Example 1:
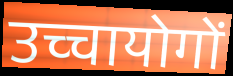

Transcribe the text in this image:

उच्‍चायोगों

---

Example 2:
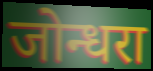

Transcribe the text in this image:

जोन्धरा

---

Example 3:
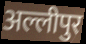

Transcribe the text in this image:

अल्लीपुर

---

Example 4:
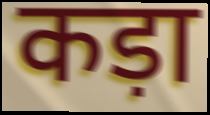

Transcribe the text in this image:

कड़ा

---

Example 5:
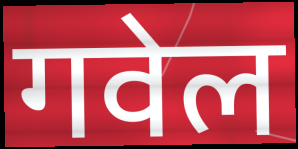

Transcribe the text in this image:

गवेल